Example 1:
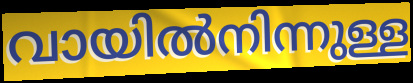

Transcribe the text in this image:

വായിൽനിന്നുള്ള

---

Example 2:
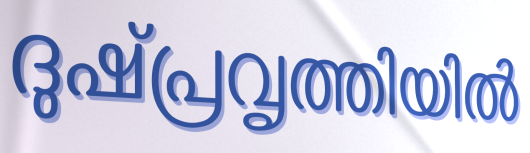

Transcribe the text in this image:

ദുഷ്പ്രവൃത്തിയിൽ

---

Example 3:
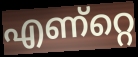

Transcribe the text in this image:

എണ്റ്റെ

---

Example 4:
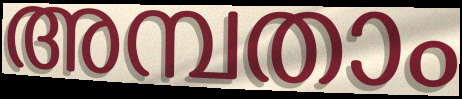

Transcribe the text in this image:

അമ്പതാം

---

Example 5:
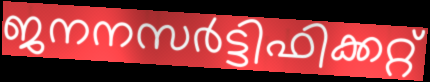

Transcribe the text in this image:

ജനനസർട്ടിഫിക്കറ്റ്